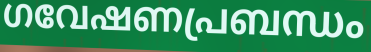
ഗവേഷണപ്രബന്ധം